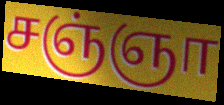
சஞ்ஞா